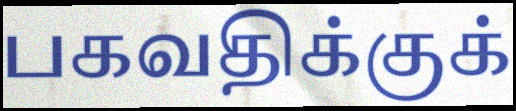
பகவதிக்குக்